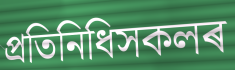
প্ৰতিনিধিসকলৰ